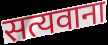
सत्यवाना